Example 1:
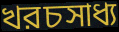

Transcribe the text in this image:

খরচসাধ্য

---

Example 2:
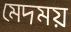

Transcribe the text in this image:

মেদময়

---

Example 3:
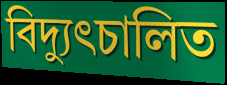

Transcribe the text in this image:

বিদ্যুৎচালিত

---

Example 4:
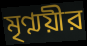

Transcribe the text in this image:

মৃণ্ময়ীর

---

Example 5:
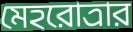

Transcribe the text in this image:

মেহরোত্রার